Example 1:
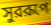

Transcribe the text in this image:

সুররূপে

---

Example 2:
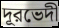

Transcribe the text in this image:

দূরভেদী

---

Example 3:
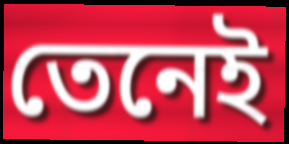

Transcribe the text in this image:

তেনেই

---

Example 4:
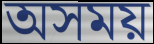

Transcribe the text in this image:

অসময়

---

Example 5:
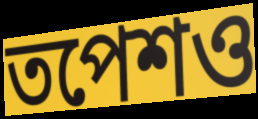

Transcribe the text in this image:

তপেশও